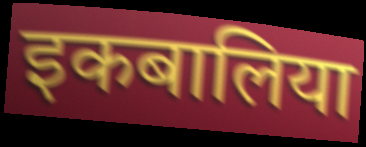
इकबालिया